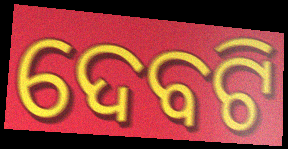
ଦେବଟି